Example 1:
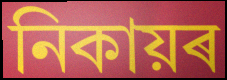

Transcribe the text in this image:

নিকায়ৰ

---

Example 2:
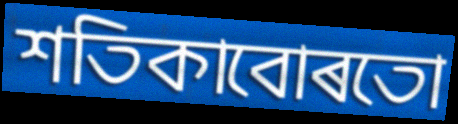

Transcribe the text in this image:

শতিকাবোৰতো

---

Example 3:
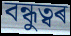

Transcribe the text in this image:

বন্ধুত্বৰ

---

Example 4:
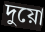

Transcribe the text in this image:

দুয়ো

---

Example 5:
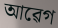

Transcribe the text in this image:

আৱেগ